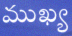
ముఖ్య